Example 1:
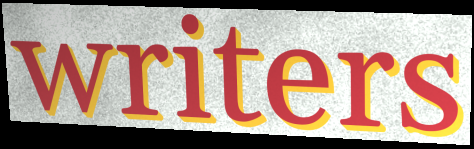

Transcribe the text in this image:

writers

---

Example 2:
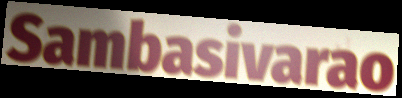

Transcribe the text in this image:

Sambasivarao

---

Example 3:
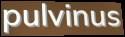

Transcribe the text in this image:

pulvinus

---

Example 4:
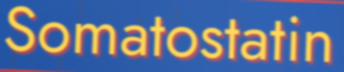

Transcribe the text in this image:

Somatostatin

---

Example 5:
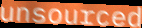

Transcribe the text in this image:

unsourced